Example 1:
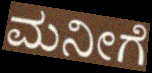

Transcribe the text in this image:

ಮನೀಗೆ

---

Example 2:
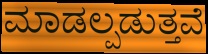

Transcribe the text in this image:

ಮಾಡಲ್ಪಡುತ್ತವೆ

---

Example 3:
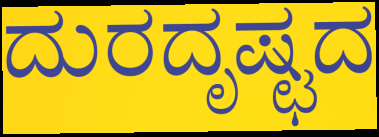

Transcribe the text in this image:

ದುರದೃಷ್ಟದ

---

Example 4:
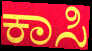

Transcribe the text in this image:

ಕಾಸಿ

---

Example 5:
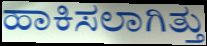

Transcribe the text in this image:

ಹಾಕಿಸಲಾಗಿತ್ತು